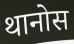
थानोस